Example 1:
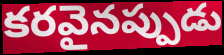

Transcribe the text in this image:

కరవైనప్పుడు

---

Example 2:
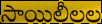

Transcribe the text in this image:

సాయిలీలల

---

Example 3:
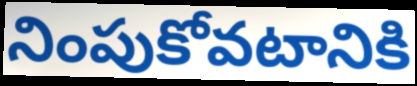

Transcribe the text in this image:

నింపుకోవటానికి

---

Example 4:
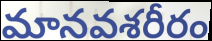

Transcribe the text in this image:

మానవశరీరం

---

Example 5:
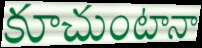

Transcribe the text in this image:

కూచుంటానా